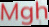
Mgh